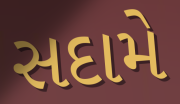
સદામે